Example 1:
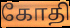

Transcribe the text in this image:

கோதி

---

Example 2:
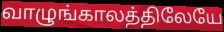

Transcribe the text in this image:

வாழுங்காலத்திலேயே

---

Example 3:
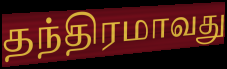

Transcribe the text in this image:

தந்திரமாவது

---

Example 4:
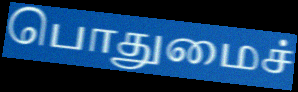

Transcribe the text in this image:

பொதுமைச்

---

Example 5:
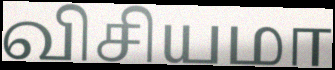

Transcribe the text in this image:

விசியமா